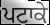
ਪਟਾਕੇ